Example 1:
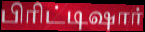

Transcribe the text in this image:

பிரிட்டிஷார்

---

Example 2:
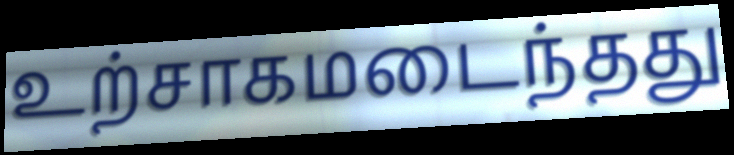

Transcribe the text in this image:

உற்சாகமடைந்தது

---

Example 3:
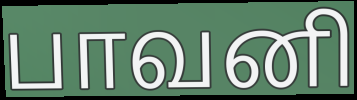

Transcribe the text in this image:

பாவனி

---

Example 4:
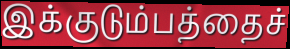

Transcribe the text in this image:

இக்குடும்பத்தைச்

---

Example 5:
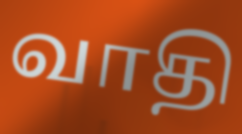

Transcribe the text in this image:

வாதி